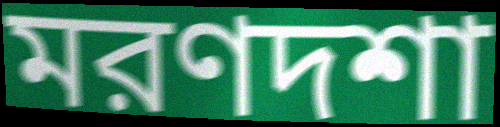
মরণদশা